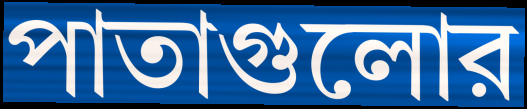
পাতাগুলোর